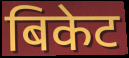
बिकेट